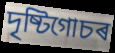
দৃষ্টিগোচৰ